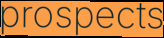
prospects